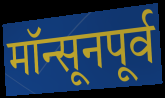
मॉन्सूनपूर्व